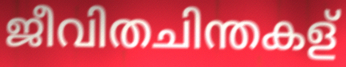
ജീവിതചിന്തകള്